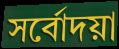
সৰ্বোদয়া